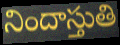
నిందాస్తుతి